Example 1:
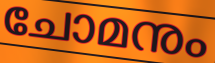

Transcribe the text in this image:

ചോമനും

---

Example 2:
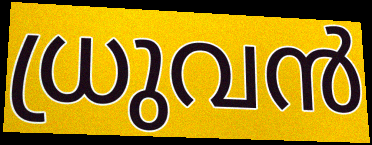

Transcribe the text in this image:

ധ്രുവൻ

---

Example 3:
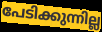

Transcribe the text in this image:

പേടിക്കുന്നില്ല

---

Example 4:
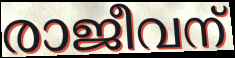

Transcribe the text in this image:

രാജീവന്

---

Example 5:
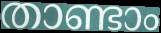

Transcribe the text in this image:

താണ്ടാം